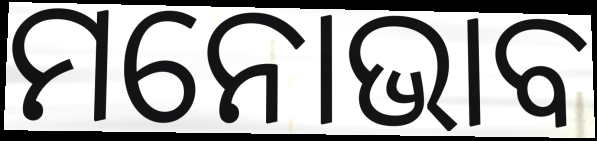
ମନୋଭାବ